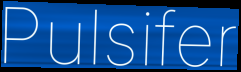
Pulsifer